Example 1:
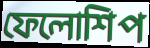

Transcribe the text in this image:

ফেলোশিপ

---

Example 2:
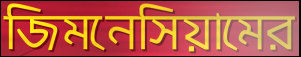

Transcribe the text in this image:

জিমনেসিয়ামের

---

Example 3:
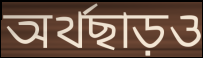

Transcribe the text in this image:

অর্থছাড়ও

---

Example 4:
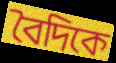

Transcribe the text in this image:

বৈদিকে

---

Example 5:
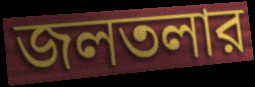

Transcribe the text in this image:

জলতলার